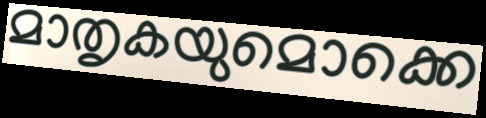
മാതൃകയുമൊക്കെ